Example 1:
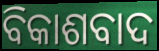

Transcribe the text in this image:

ବିକାଶବାଦ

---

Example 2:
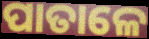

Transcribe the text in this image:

ପାତାଳେ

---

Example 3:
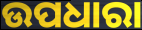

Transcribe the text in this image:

ଉପଧାରା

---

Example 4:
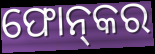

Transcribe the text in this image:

ଫୋନ୍‌କର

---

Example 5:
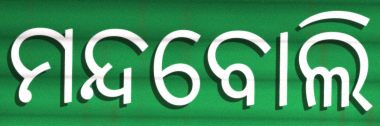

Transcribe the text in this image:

ମନ୍ଦବୋଲି